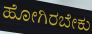
ಹೋಗಿರಬೇಕು